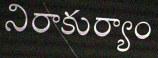
నిరాకుర్యాం